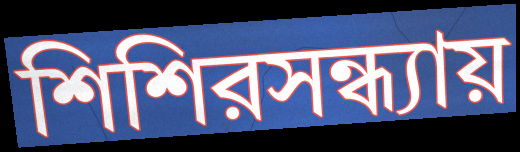
শিশিরসন্ধ্যায়